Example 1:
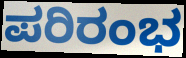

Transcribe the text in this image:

ಪರಿರಂಭ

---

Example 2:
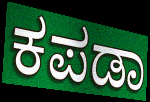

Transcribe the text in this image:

ಕಪಡಾ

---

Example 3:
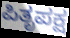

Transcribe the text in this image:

ಪಿತೃಪಕ್ಷ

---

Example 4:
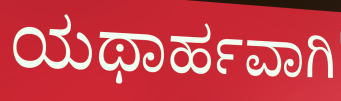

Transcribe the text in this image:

ಯಥಾರ್ಹವಾಗಿ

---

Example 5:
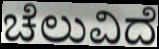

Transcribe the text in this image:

ಚೆಲುವಿದೆ